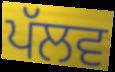
ਪੱਲਵ